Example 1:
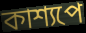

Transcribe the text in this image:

কাশ্যপে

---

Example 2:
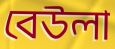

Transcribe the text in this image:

বেউলা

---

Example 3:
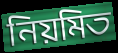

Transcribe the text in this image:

নিয়মিত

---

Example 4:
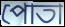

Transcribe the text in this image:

পোতা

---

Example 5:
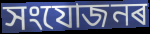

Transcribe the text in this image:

সংযোজনৰ